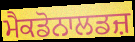
ਮੈਕਡੋਨਾਲਡਜ਼